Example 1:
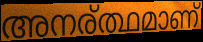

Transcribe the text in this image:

അനര്ത്ഥമാണ്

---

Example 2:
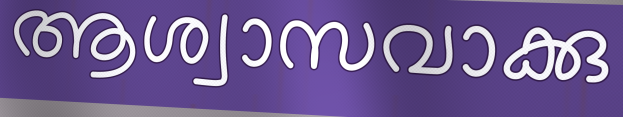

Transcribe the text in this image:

ആശ്വാസവാക്കു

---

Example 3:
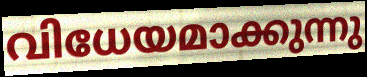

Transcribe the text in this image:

വിധേയമാക്കുന്നു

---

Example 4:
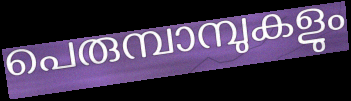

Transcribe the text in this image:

പെരുമ്പാമ്പുകളും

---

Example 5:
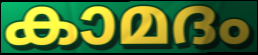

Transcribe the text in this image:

കാമദം